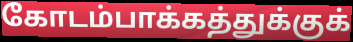
கோடம்பாக்கத்துக்குக்